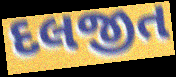
દલજીત